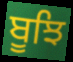
ਬੂਝਿ